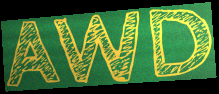
AWD